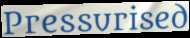
Pressurised